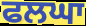
ਫਲਘਾ